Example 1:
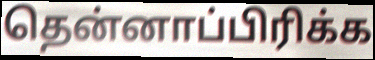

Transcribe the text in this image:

தென்னாப்பிரிக்க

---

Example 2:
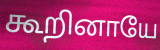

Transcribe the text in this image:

கூறினாயே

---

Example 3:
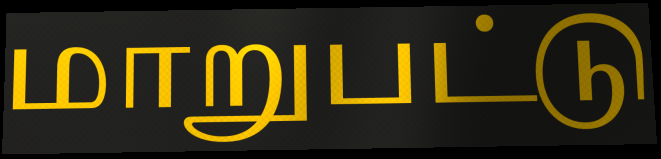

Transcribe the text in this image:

மாறுபட்டு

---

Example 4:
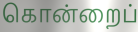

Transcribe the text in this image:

கொன்றைப்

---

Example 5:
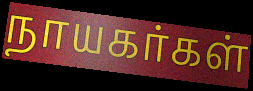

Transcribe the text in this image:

நாயகர்கள்